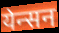
येन्सन